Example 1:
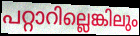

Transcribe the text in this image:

പറ്റാറില്ലെങ്കിലും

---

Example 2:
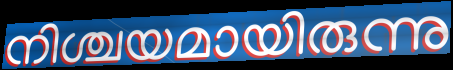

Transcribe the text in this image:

നിശ്ചയമായിരുന്നു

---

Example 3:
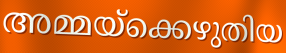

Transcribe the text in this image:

അമ്മയ്ക്കെഴുതിയ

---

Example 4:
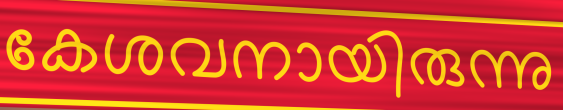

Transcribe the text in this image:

കേശവനായിരുന്നു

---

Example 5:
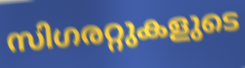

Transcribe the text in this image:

സിഗരറ്റുകളുടെ